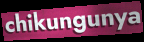
chikungunya